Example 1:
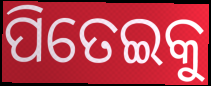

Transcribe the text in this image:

ପିତେଇକୁ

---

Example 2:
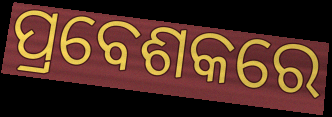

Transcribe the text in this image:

ପ୍ରବେଶକରେ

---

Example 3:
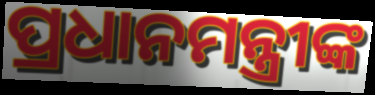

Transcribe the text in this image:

ପ୍ରଧାନମନ୍ତ୍ରୀଙ୍କ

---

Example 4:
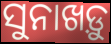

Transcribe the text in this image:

ସୁନାଖଡ଼ୁ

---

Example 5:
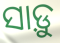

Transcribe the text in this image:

ସାଡ଼ୁ